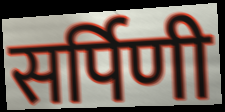
सर्पिणी